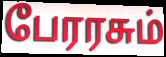
பேரரசும்